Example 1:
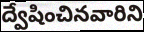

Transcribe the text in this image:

ద్వేషించినవారిని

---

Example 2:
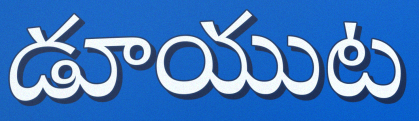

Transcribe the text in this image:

డూయుట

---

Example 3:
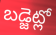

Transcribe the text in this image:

బడ్జెట్లో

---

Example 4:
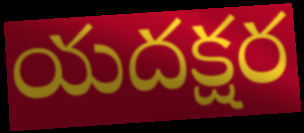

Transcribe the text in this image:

యదక్షర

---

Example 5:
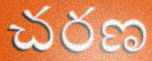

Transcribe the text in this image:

చరణ